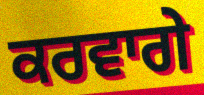
ਕਰਵਾਗੇ